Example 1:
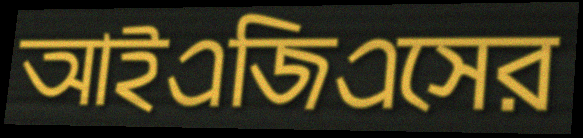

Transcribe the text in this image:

আইএজিএসের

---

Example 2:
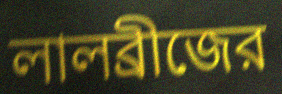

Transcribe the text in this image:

লালব্রীজের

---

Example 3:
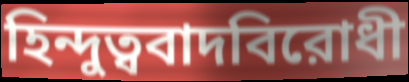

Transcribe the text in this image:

হিন্দুত্ববাদবিরোধী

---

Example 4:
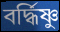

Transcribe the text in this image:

বর্দ্ধিষ্ণু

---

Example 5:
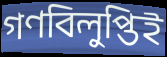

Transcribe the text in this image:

গণবিলুপ্তিই